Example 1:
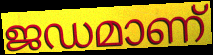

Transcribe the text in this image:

ജഡമാണ്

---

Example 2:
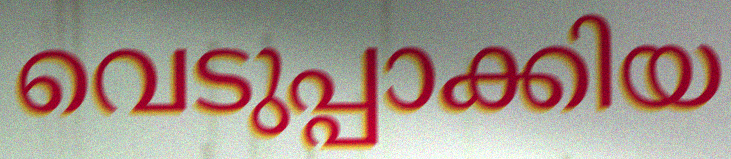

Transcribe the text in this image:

വെടുപ്പാക്കിയ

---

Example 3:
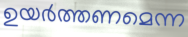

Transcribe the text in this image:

ഉയർത്തണമെന്ന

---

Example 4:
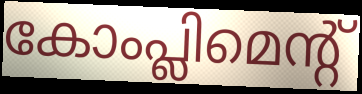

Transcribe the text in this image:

കോംപ്ലിമെന്റ്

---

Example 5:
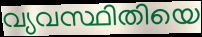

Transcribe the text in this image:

വ്യവസ്ഥിതിയെ